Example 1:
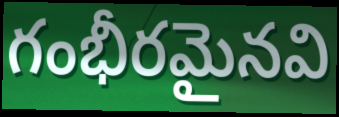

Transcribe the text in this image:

గంభీరమైనవి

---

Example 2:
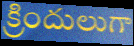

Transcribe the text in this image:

క్రిందులుగా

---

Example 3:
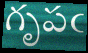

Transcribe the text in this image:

గృపఁ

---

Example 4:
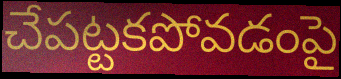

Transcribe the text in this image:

చేపట్టకపోవడంపై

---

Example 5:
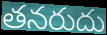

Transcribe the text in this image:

తనరుదు